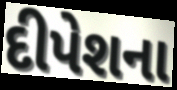
દીપેશના